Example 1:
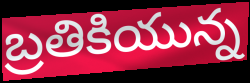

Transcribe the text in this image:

బ్రతికియున్న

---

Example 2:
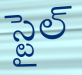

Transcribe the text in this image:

స్టైల్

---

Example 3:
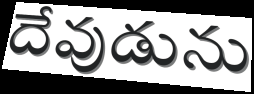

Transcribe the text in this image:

దేవుడును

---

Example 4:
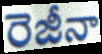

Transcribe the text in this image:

రెజీనా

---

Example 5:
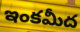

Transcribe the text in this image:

ఇంకమీద